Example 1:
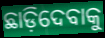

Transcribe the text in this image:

ଛାଡ଼ିଦେବାକୁ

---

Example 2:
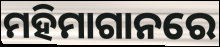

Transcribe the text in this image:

ମହିମାଗାନରେ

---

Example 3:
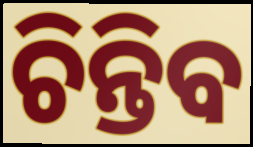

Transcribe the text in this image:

ଚିନ୍ତିବ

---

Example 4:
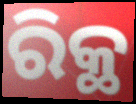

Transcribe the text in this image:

ରିକ୍ଥ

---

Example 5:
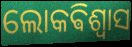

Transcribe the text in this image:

ଲୋକଵିଶ୍ଵାସ